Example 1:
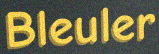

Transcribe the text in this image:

Bleuler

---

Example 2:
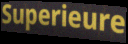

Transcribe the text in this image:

Superieure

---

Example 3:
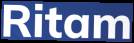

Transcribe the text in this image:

Ritam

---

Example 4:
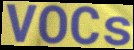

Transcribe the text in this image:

VOCs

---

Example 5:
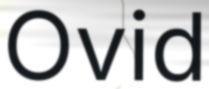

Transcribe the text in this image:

Ovid